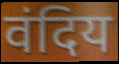
वंदिय